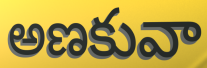
అణకువా